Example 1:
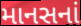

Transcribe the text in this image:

માનસનાં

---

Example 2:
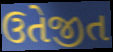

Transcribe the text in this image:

ઉતેજીત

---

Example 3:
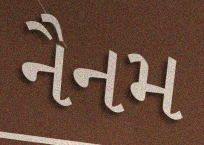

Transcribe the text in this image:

નૈનમ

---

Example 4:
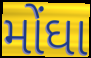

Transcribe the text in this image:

મોંઘા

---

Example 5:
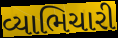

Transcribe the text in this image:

વ્યાભિચારી